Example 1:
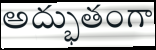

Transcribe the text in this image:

అద్భుతంగా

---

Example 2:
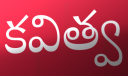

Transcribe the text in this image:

కవిత్వ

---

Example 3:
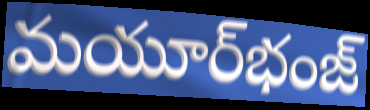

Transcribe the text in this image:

మయూర్‌భంజ్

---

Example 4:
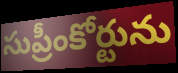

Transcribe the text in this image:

సుప్రీంకోర్టును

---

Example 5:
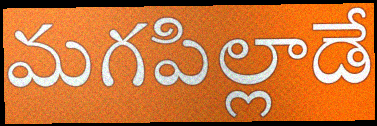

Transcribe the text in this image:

మగపిల్లాడే